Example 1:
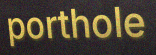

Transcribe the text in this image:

porthole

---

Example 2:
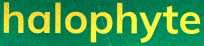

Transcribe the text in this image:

halophyte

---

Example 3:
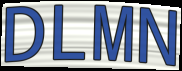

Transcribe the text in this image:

DLMN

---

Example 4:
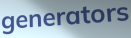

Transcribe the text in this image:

generators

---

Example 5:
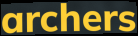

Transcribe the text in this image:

archers